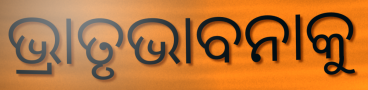
ଭ୍ରାତୃଭାବନାକୁ